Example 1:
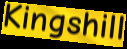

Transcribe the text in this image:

Kingshill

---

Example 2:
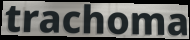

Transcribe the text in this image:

trachoma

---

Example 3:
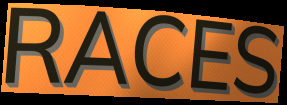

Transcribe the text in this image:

RACES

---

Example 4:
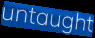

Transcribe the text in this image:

untaught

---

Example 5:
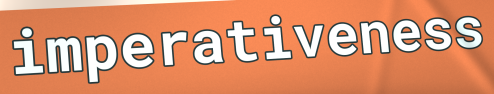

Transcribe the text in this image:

imperativeness